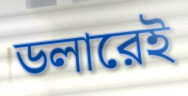
ডলারেই